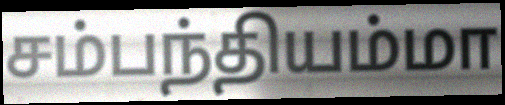
சம்பந்தியம்மா